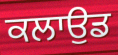
ਕਲਾਉਡ